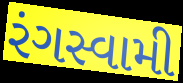
રંગસ્વામી